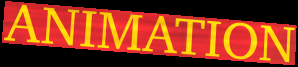
ANIMATION